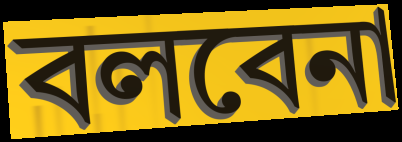
বলবেনা